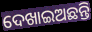
ଦେଖାଇଅଛନ୍ତି